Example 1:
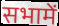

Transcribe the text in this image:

सभामें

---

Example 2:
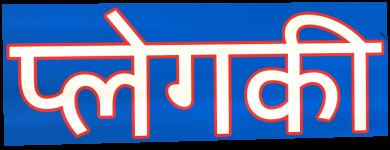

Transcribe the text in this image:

प्लेगकी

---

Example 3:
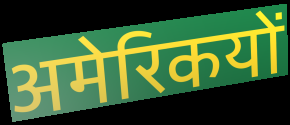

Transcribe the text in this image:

अमेरिकयों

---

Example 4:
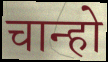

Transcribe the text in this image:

चान्हो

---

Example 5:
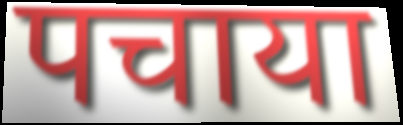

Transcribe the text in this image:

पचाया